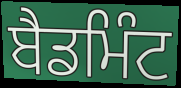
ਬੈਡਮਿੰਟ